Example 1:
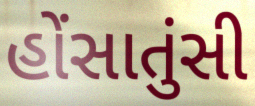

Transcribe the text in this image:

હોંસાતુંસી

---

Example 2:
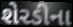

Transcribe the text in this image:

શેરડીના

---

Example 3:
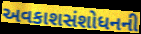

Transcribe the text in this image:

અવકાશસંશોધનની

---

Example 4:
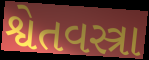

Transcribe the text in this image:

શ્વેતવસ્ત્રા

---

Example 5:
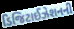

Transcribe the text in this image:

ડિજિટાઈઝેશનની